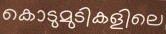
കൊടുമുടികളിലെ